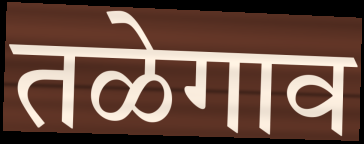
तळेगाव